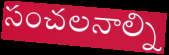
సంచలనాల్ని